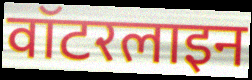
वॉटरलाइन